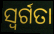
ସ୍ୱର୍ଗତା